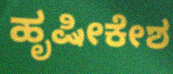
ಹೃಷೀಕೇಶ